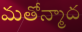
మతోన్మాద